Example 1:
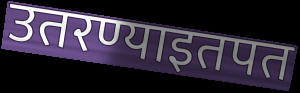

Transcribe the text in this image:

उतरण्याइतपत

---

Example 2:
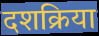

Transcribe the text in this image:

दशक्रिया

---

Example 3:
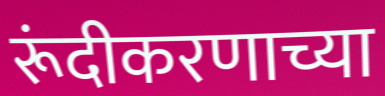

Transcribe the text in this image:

रूंदीकरणाच्या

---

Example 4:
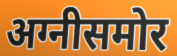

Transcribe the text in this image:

अग्नीसमोर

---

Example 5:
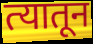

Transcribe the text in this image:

त्‍यातून